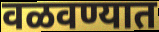
वळवण्यात